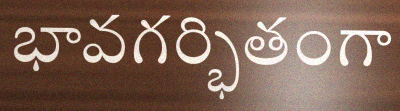
భావగర్భితంగా